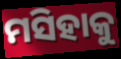
ମସିହାକୁ